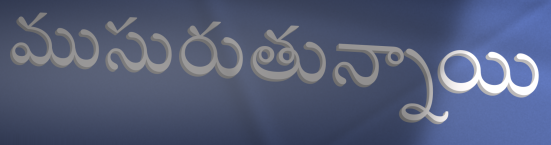
ముసురుతున్నాయి